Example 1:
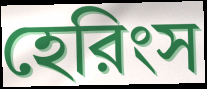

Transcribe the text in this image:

হেরিংস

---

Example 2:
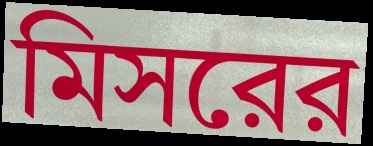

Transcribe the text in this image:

মিসরের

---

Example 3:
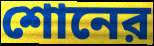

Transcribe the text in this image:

শোনের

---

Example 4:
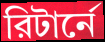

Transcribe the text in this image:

রিটার্নে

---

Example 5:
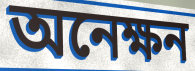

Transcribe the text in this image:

অনেক্ষন